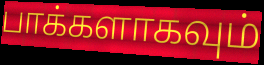
பாக்களாகவும்